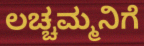
ಲಚ್ಚಮ್ಮನಿಗೆ